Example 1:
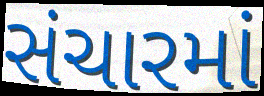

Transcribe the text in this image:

સંચારમાં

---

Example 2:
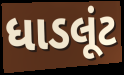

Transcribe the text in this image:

ધાડલૂંટ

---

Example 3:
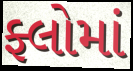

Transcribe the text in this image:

ફ્લોમાં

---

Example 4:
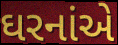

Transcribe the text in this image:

ઘરનાંએ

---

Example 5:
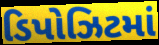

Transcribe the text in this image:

ડિપોઝિટમાં